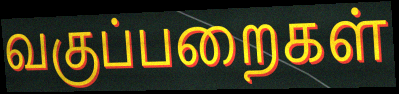
வகுப்பறைகள்